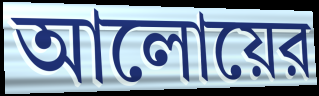
আলোয়ের